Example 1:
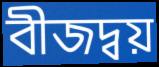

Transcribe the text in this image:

বীজদ্বয়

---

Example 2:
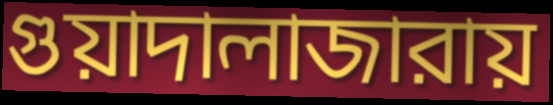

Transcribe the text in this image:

গুয়াদালাজারায়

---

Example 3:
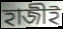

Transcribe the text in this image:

হাজীই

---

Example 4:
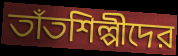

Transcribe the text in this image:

তাঁতশিল্পীদের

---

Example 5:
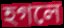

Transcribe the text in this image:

হগলে